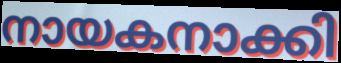
നായകനാക്കി